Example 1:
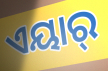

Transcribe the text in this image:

ଏୟାର୍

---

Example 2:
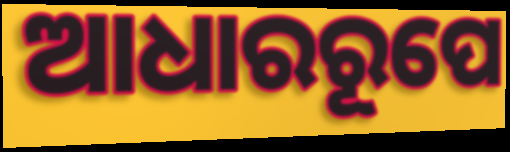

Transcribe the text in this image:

ଆଧାରରୂପେ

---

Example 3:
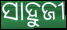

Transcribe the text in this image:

ସାହୁଜୀ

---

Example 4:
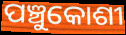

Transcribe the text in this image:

ପଞ୍ଚୁକୋଶୀ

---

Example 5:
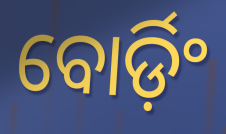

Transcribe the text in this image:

ବୋର୍ଡ଼ିଂ